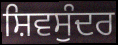
ਸ਼ਿਵਸੁੰਦਰ